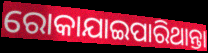
ରୋକାଯାଇପାରିଥାନ୍ତା